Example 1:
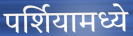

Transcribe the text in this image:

पर्शियामध्ये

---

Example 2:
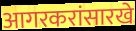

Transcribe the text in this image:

आगरकरांसारखे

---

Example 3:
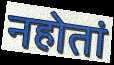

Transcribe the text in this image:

नहोतां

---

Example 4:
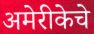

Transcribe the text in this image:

अमेरीकेचे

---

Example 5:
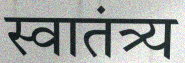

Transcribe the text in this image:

स्‍वातंत्र्य